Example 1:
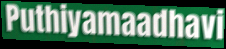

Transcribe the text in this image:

Puthiyamaadhavi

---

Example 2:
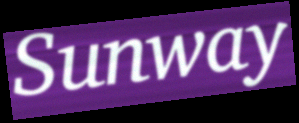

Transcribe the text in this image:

Sunway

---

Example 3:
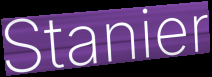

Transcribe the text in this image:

Stanier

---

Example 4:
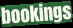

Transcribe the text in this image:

bookings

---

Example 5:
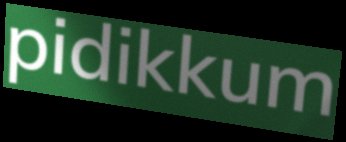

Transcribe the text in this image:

pidikkum